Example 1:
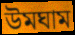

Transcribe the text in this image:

উমঘাম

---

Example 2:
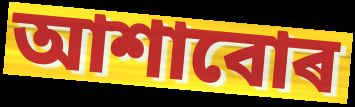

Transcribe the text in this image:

আশাবোৰ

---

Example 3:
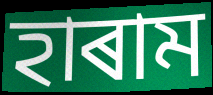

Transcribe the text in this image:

হাৰাম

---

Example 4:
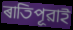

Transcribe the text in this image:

ৰাতিপূৱাই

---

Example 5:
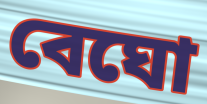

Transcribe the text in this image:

বেঘো